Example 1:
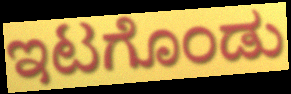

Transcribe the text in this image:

ಇಟಗೊಂಡು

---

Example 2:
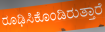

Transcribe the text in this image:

ರೂಢಿಸಿಕೊಂಡಿರುತ್ತಾರೆ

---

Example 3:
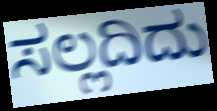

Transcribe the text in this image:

ಸಲ್ಲದಿದು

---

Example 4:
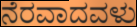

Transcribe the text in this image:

ನೆರವಾದವಳು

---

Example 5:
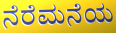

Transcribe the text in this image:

ನೆರೆಮನೆಯ